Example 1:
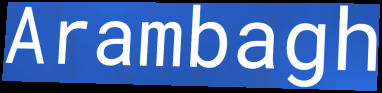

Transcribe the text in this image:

Arambagh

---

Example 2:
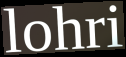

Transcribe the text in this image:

lohri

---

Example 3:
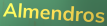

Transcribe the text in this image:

Almendros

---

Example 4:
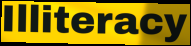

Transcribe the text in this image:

Illiteracy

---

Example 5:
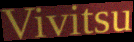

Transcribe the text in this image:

Vivitsu